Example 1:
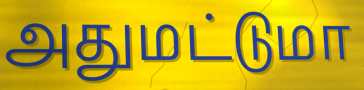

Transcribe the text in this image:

அதுமட்டுமா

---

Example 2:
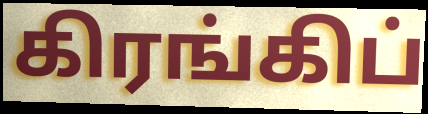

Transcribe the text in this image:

கிரங்கிப்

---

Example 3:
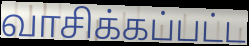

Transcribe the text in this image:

வாசிக்கப்பட்ட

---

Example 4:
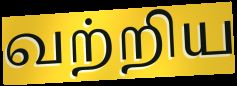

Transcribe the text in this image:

வற்றிய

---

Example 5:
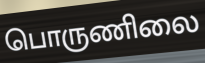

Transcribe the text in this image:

பொருணிலை